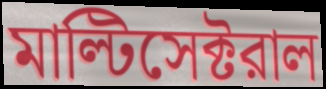
মাল্টিসেক্টরাল